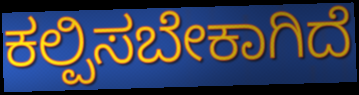
ಕಲ್ಪಿಸಬೇಕಾಗಿದೆ